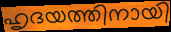
ഹൃദയത്തിനായി